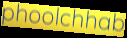
phoolchhab